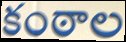
కంఠాల